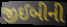
જીઈબીની